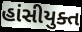
હાંસીયુક્ત